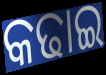
କଢାଇ